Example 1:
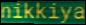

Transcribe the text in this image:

nikkiya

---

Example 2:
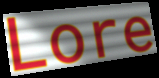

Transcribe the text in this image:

Lore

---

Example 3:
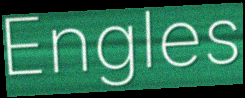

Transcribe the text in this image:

Engles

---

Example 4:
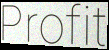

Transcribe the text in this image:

Profit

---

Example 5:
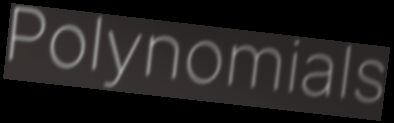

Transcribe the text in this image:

Polynomials